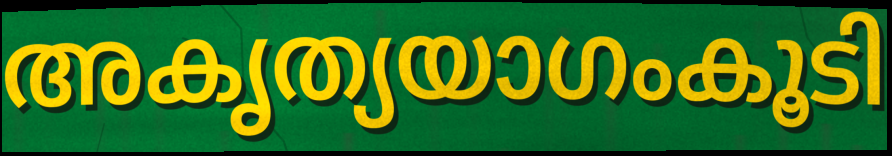
അകൃത്യയാഗംകൂടി